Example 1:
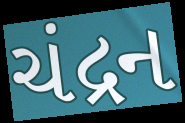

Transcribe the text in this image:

ચંદ્રન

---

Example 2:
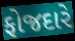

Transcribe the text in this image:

ફોજદારે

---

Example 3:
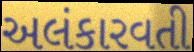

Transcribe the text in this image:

અલંકારવતી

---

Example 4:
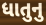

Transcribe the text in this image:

ધાતુનુ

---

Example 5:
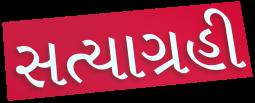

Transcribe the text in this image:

સત્યાગ્રહી